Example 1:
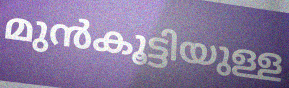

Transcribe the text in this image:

മുൻകൂട്ടിയുള്ള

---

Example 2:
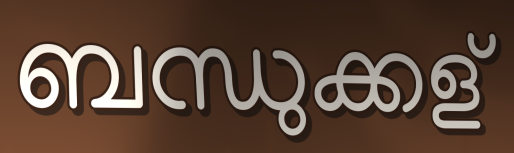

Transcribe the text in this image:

ബന്ധുക്കള്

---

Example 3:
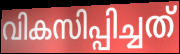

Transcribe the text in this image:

വികസിപ്പിച്ചത്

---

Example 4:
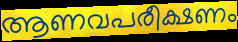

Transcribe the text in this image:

ആണവപരീക്ഷണം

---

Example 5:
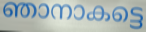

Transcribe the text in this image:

ഞാനാകട്ടെ